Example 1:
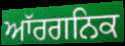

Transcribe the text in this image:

ਆੱਰਗਨਿਕ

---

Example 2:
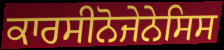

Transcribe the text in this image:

ਕਾਰਸੀਨੋਜੇਨੇਸਿਸ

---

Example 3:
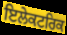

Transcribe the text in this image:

ਇਲੇਕਟਰਿਕ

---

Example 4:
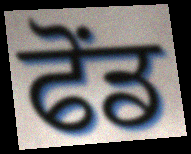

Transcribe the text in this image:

ਫੋਂਡ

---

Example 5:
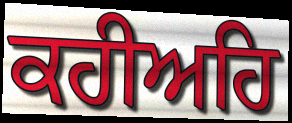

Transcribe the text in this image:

ਕਹੀਅਹਿ